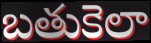
బతుకెలా